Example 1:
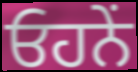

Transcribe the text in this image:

ਓਹਨੇੰ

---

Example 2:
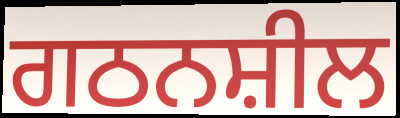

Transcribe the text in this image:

ਗਠਨਸ਼ੀਲ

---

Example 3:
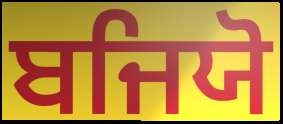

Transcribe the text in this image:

ਬਜਿਯੋ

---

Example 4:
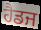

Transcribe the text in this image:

ਹੈਡਜ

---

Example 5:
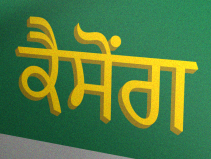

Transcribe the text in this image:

ਕੈਸੋਂਗ